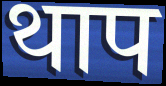
थाप